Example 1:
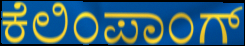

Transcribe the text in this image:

ಕೆಲಿಂಪಾಂಗ್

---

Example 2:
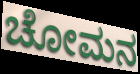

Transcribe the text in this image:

ಚೋಮನ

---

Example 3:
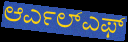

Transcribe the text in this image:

ಆರ್ಎಲ್ಎಫ್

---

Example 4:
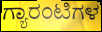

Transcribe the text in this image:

ಗ್ಯಾರಂಟಿಗಳ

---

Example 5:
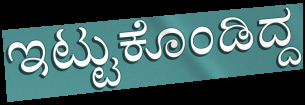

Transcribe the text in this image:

ಇಟ್ಟುಕೊಂಡಿದ್ದ